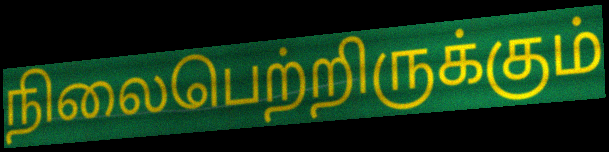
நிலைபெற்றிருக்கும்